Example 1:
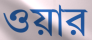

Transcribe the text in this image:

ওয়ার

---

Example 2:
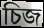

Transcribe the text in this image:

চিজ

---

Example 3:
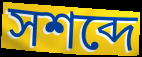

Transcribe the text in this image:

সশব্দে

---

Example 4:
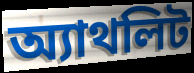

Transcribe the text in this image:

অ্যাথলিট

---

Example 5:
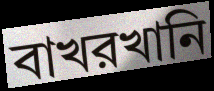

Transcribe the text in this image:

বাখরখানি